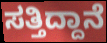
ಸತ್ತಿದ್ದಾನೆ